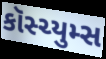
કૉસ્ચ્યુમ્સ